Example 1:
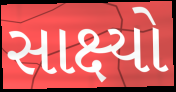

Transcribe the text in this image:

સાક્ષ્યો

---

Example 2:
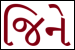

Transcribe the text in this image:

જિને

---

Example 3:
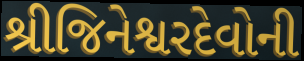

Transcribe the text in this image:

શ્રીજિનેશ્વરદેવોની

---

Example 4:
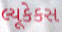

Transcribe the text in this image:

લ્યૂકેકસ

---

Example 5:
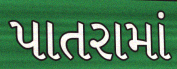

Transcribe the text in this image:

પાતરામાં